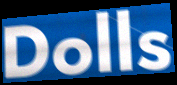
Dolls